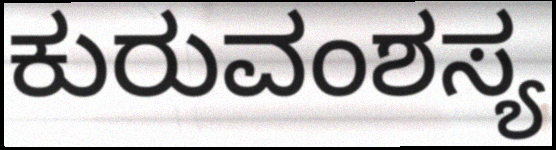
ಕುರುವಂಶಸ್ಯ